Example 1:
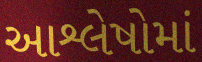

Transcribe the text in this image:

આશ્લેષોમાં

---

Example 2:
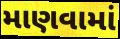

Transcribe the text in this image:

માણવામાં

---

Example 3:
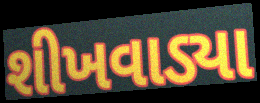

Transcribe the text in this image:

શીખવાડ્યા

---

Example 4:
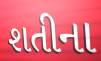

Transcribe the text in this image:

શતીના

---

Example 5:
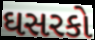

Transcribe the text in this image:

ઘસરકો